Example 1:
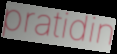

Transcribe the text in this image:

pratidin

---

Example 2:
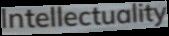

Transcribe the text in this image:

Intellectuality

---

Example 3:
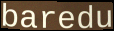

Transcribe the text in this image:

baredu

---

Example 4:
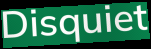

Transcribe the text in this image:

Disquiet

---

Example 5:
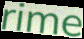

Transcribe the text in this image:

rime